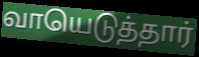
வாயெடுத்தார்